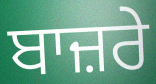
ਬਾਜ਼ਰੇ